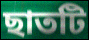
ছাতটি